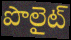
పొలైట్